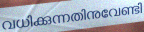
വധിക്കുന്നതിനുവേണ്ടി